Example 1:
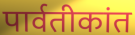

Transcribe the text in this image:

पार्वतीकांत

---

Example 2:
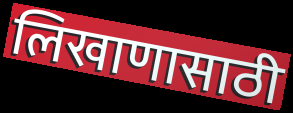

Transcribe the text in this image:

लिखाणासाठी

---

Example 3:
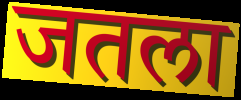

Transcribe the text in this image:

जतला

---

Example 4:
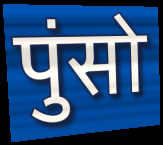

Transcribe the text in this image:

पुंसो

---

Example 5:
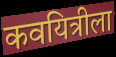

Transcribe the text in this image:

कवयित्रीला